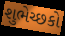
શુભેચ્છકો